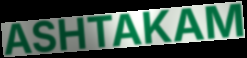
ASHTAKAM